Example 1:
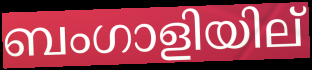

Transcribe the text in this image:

ബംഗാളിയില്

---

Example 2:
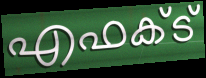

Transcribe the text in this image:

എഫക്ട്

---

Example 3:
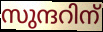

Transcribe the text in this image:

സുന്ദറിന്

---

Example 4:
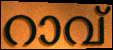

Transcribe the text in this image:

റാവ്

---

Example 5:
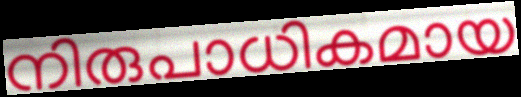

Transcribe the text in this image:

നിരുപാധികമായ